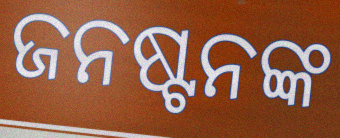
ଜନଷ୍ଟନଙ୍କ